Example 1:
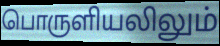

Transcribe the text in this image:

பொருளியலிலும்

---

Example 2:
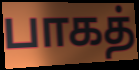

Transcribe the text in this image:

பாகத்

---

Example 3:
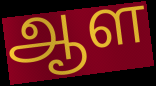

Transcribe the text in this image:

ஆள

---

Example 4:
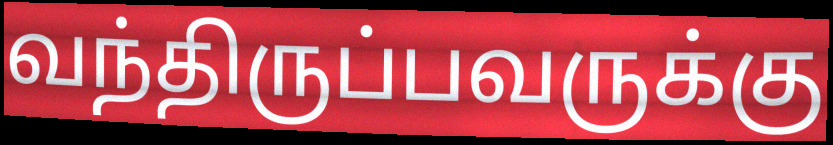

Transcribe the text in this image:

வந்திருப்பவருக்கு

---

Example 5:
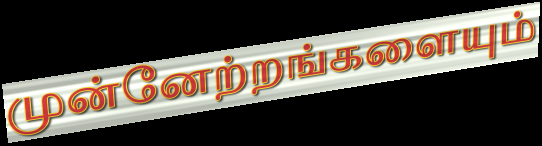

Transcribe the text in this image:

முன்னேற்றங்களையும்